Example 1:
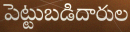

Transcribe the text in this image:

పెట్టుబడిదారుల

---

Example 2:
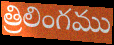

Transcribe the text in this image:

త్రిలింగము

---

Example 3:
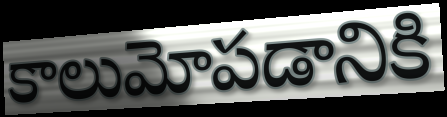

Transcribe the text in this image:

కాలుమోపడానికి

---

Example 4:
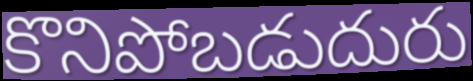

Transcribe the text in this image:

కొనిపోబడుదురు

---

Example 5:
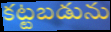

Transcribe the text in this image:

కట్టబడును